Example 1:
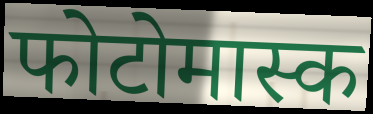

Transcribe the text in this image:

फोटोमास्क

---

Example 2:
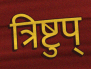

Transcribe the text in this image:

त्रिष्टुप्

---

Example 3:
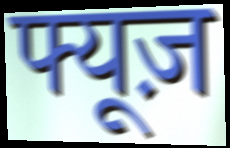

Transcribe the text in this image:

फ्यूज़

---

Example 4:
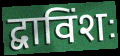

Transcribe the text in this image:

द्वाविंशः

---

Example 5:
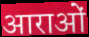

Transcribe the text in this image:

आराओं